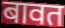
बावत